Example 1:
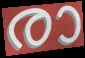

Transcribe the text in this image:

രാ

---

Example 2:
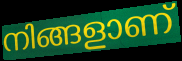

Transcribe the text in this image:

നിങ്ങളാണ്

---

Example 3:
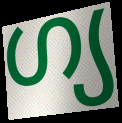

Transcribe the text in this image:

ഗ്യ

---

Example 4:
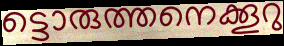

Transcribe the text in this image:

ട്ടൊരുത്തനെക്കൂറു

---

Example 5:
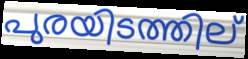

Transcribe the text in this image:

പുരയിടത്തില്